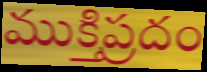
ముక్తిప్రదం